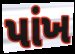
પાંખ